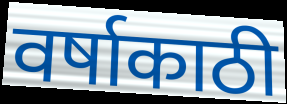
वर्षाकाठी